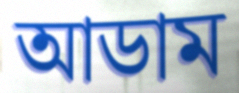
আডাম